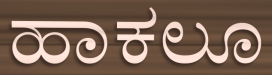
ಹಾಕಲೂ